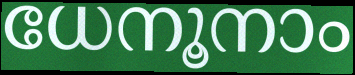
ധേനൂനാം